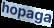
hopaga